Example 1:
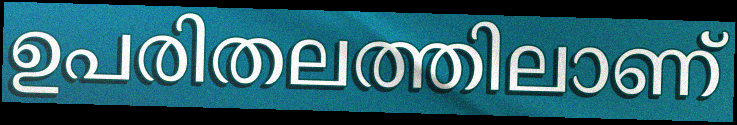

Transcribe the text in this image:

ഉപരിതലത്തിലാണ്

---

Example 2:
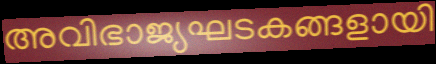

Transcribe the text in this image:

അവിഭാജ്യഘടകങ്ങളായി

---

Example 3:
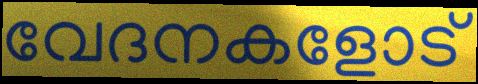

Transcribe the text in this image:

വേദനകളോട്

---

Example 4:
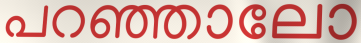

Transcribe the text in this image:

പറഞ്ഞാലോ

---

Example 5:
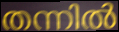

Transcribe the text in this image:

തന്നിൽ